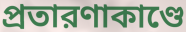
প্রতারণাকাণ্ডে